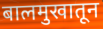
बालमुखातून